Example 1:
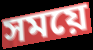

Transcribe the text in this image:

সময়ে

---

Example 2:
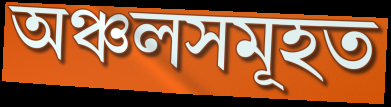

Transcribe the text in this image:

অঞ্চলসমূহত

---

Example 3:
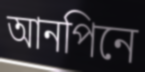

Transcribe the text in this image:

আনপিনে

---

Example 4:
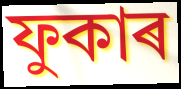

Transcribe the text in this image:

ফুকাৰ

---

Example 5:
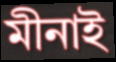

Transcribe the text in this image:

মীনাই